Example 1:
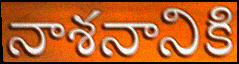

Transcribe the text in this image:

నాశనానికి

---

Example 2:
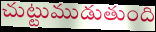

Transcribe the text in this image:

చుట్టుముడుతుంది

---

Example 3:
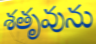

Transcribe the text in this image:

శతృవును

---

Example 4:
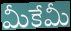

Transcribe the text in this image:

మీకేమీ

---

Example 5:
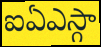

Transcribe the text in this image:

ఐఏఎస్గా